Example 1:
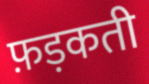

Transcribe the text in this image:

फ़ड़कती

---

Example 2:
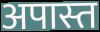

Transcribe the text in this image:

अपास्‍त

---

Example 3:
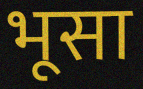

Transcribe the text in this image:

भूसा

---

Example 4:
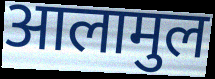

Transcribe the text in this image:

आलामुल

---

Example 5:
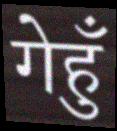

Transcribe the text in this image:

गेहुँ